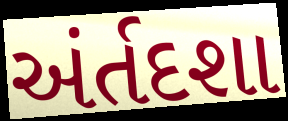
અંર્તદશા